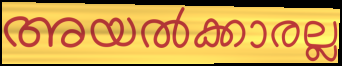
അയൽക്കാരല്ല